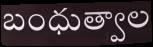
బంధుత్వాల